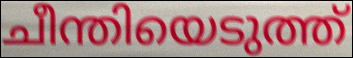
ചീന്തിയെടുത്ത്